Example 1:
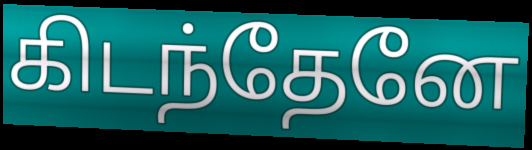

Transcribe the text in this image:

கிடந்தேனே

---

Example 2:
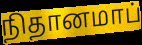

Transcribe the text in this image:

நிதானமாப்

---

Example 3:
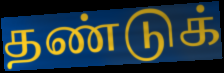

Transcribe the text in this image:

தண்டுக்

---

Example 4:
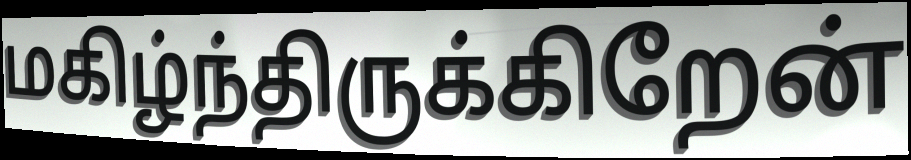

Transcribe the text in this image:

மகிழ்ந்திருக்கிறேன்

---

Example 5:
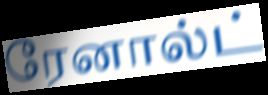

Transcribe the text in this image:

ரேனால்ட்